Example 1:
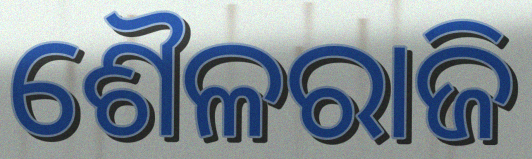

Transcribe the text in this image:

ଶୈଳରାଜି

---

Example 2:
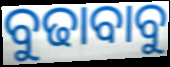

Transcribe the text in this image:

ବୁଢାବାବୁ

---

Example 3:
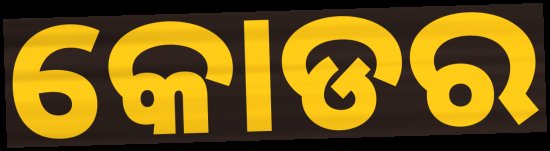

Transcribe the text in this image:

କୋଡର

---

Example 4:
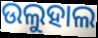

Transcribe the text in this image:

ଉଲୁହାଲ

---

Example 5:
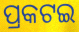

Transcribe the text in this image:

ପ୍ରକଟଇ